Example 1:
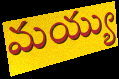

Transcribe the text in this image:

మయ్యు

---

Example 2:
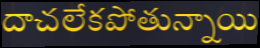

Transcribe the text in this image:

దాచలేకపోతున్నాయి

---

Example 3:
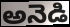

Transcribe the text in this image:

అనెడి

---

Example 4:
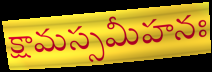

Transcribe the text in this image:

క్షామస్సమీహనః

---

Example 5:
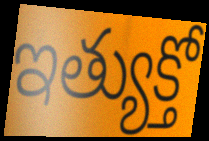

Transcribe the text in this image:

ఇత్యుక్తో